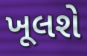
ખૂલશે